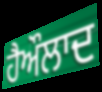
ਹੈਔਲਾਦ